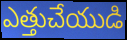
ఎత్తుచేయుడి